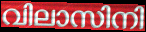
വിലാസിനി